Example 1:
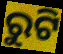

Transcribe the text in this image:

ରୁଟି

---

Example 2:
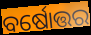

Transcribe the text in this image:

ବର୍ଷୋତ୍ତର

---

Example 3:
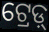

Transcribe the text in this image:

ଟ୍ରେଡ଼୍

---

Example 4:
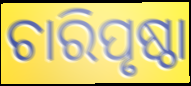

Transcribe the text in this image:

ଚାରିପୃଷ୍ଠା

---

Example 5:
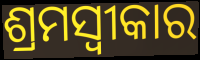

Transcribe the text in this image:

ଶ୍ରମସ୍ୱୀକାର